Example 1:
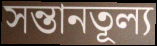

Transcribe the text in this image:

সন্তানতূল্য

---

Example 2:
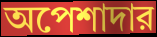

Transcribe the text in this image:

অপেশাদার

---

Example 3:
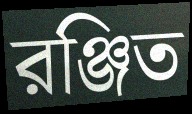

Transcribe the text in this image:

রঞ্জিত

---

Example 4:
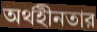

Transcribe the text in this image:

অর্থহীনতার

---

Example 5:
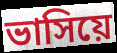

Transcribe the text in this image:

ভাসিয়ে